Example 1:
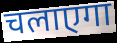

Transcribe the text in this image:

चलाएगा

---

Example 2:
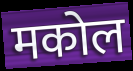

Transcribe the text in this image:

मकोल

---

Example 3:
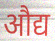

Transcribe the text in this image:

औद्य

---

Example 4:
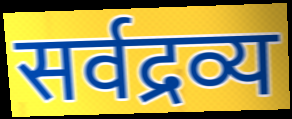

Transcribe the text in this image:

सर्वद्रव्य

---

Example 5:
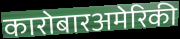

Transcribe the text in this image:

कारोबारअमेरिकी